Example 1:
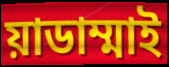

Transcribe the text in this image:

য়াডাম্মাই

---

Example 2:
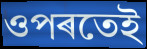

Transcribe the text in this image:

ওপৰতেই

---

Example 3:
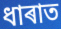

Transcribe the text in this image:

ধাৰাত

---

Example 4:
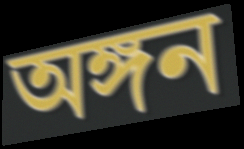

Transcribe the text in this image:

অঙ্গন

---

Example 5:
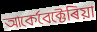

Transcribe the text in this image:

আৰ্কেবেক্টেৰিয়া